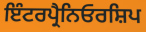
ਇੰਟਰਪ੍ਰੈਨਿਓਰਸ਼ਿਪ